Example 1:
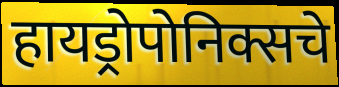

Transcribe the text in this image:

हायड्रोपोनिक्सचे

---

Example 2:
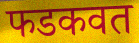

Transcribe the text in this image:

फडकवत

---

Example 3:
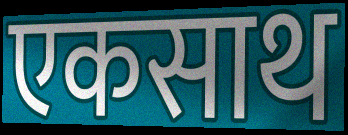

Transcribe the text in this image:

एकसाथ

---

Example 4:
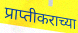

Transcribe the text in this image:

प्राप्तीकराच्या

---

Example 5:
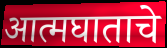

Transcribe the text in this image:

आत्मघाताचे